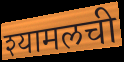
श्यामलची